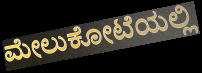
ಮೇಲುಕೋಟೆಯಲ್ಲಿ